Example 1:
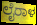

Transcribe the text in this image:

ಲೈರಾಳ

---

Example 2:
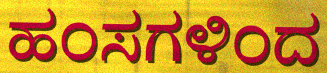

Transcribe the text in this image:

ಹಂಸಗಳಿಂದ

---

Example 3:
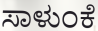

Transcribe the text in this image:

ಸಾಳುಂಕೆ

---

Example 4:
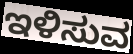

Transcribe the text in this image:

ಇಳಿಸುವ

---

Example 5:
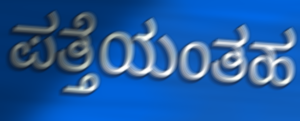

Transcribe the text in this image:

ಪತ್ತೆಯಂತಹ